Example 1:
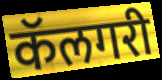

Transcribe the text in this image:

कॅलगरी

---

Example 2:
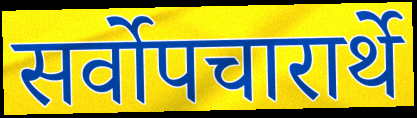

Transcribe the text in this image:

सर्वोपचारार्थे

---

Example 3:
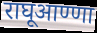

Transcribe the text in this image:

राघूआण्णा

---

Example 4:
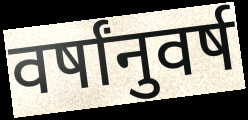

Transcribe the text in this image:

वर्षांनुवर्ष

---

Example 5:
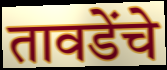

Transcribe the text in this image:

तावडेंचे